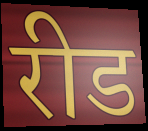
रीड